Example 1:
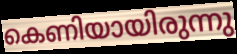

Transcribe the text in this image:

കെണിയായിരുന്നു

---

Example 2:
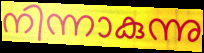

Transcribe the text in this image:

നിന്നാകുന്നു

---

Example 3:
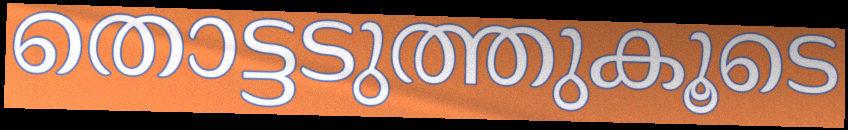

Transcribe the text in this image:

തൊട്ടടുത്തുകൂടെ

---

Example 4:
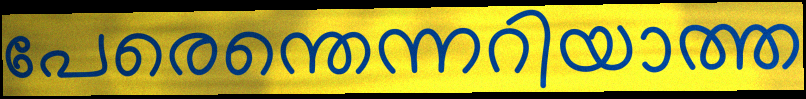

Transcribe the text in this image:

പേരെന്തെന്നറിയാത്ത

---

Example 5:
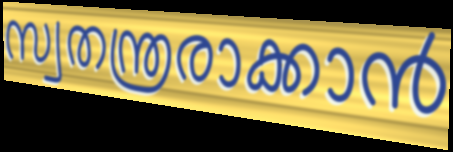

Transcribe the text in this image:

സ്വതന്ത്രരാക്കാൻ